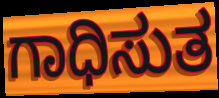
ಗಾಧಿಸುತ